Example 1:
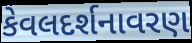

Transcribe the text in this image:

કેવલદર્શનાવરણ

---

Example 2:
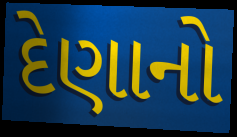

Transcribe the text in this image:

દેણાનો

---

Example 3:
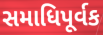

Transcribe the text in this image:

સમાધિપૂર્વક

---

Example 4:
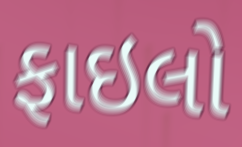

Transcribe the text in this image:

ફાઇલો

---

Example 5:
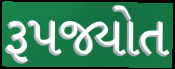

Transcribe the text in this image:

રૂપજ્યોત